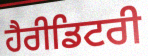
ਹੈਰੀਡਿਟਰੀ